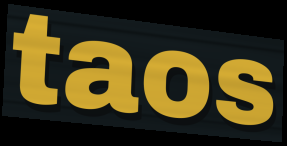
taos